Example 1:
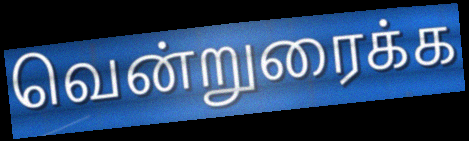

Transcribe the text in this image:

வென்றுரைக்க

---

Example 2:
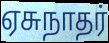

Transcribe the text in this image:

ஏசுநாதர்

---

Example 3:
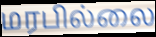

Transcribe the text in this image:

மரபில்லை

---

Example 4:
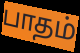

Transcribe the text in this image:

பாதம்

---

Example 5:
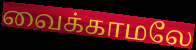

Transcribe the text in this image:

வைக்காமலே